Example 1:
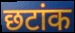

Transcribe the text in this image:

छटांक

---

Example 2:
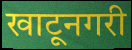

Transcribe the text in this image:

खाटूनगरी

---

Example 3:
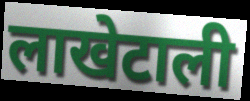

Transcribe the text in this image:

लाखेटाली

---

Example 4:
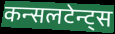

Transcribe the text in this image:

कन्सलटेन्ट्स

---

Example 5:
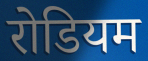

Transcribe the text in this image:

रोडियम